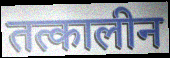
तत्कालीन